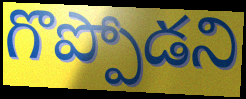
గొప్పోడని